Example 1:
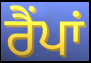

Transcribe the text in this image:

ਰੈਂਪਾਂ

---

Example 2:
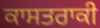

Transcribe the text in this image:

ਕਾਸਤਰਾਕੀ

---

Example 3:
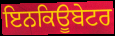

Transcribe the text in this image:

ਇਨਕਿਊਬੇਟਰ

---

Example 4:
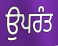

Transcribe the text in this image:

ਉਪਰੰਤ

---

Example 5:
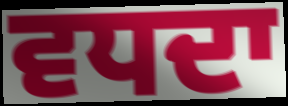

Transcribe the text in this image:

ਵਧਦਾ